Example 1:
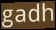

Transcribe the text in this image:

gadh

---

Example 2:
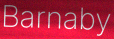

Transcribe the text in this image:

Barnaby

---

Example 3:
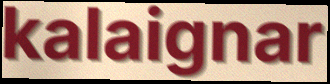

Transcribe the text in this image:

kalaignar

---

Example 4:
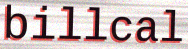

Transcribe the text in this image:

billcal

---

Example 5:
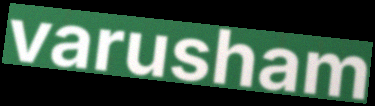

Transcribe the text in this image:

varusham